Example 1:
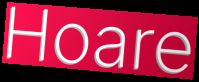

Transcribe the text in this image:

Hoare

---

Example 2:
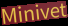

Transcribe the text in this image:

Minivet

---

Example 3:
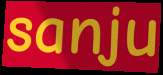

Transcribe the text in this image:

sanju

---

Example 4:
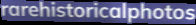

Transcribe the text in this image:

rarehistoricalphotos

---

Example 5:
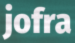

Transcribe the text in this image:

jofra